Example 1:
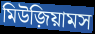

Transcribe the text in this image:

মিউজ়িয়ামস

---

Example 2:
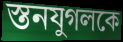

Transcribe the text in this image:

স্তনযুগলকে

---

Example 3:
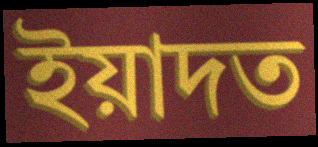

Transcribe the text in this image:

ইয়াদত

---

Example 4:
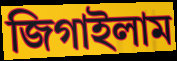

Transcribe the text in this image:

জিগাইলাম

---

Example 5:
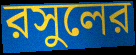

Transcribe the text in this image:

রসুলের